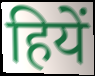
हियें